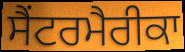
ਸੈਂਟਰਮੈਰੀਕਾ